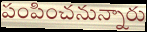
పంపించనున్నారు